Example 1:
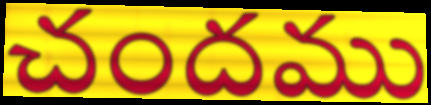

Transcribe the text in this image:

చందము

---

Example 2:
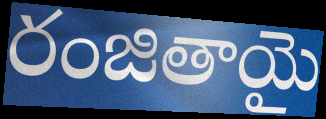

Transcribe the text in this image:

రంజితాయై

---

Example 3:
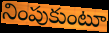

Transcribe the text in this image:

నింపుకుంటూ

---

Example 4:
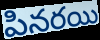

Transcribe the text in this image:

పినరయి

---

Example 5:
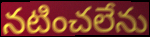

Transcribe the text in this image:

నటించలేను